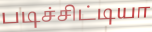
படிச்சிட்டியா